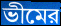
ভীমের